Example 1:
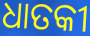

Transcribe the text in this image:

ଧାତକୀ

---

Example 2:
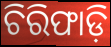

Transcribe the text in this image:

ଚିରିଫାଡ଼ି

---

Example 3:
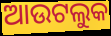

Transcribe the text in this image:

ଆଉଟଲୁକ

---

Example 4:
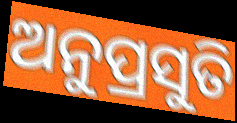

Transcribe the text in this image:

ଅନୁପ୍ରସୁତି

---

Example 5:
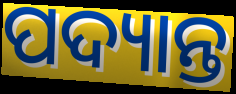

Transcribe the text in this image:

ପଦ୍ୟାନ୍ତ